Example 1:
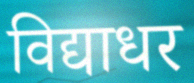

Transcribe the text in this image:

विद्याधर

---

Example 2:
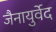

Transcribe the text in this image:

जैनायुर्वेद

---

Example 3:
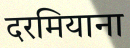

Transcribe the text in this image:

दरमियाना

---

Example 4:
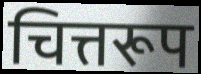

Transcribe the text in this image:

चित्तरूप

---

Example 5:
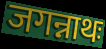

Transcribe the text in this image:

जगन्नाथः